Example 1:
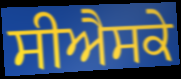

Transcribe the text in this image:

ਸੀਐਸਕੇ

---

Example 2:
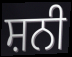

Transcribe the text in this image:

ਸ਼ਨੀ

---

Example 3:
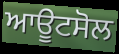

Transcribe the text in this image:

ਆਊਟਸੋਲ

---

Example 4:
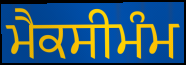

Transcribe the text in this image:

ਮੈਕਸੀਮੰਮ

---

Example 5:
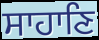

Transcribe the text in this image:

ਸਾਹਾਣਿ